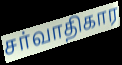
சர்வாதிகார